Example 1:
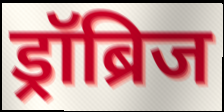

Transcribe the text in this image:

ड्रॉब्रिज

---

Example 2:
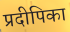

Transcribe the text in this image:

प्रदीपिका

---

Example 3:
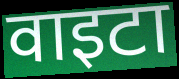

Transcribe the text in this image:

वाइटा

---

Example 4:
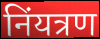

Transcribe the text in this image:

निंयत्रण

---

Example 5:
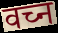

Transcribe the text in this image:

वच्न